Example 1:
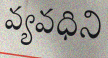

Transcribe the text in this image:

వ్యవధిని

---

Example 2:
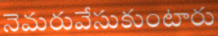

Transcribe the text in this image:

నెమరువేసుకుంటారు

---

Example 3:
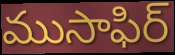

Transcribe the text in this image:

ముసాఫిర్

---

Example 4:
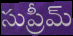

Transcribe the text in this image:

సుప్రీమ్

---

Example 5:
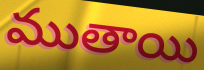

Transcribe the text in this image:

ముతాయి